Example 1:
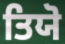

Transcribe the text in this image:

ਤਿਯੋ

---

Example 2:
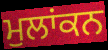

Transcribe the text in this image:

ਮੁਲਾਂਕਨ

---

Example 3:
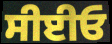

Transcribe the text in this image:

ਸੀਈਓ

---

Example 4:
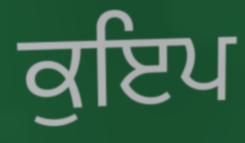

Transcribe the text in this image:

ਕੁਇਪ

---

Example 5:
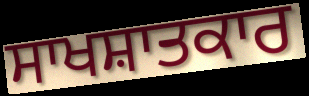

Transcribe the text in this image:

ਸਾਖਸ਼ਾਤਕਾਰ